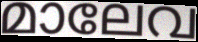
മാലേവ